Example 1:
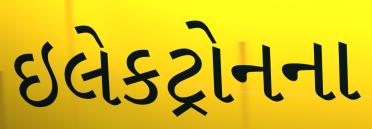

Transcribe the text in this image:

ઇલેકટ્રોનના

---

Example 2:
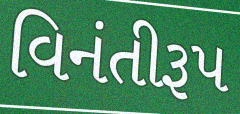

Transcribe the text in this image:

વિનંતીરૂપ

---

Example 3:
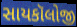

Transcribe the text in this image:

સાયકૉલોજી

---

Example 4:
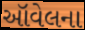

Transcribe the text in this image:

ઑવેલના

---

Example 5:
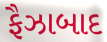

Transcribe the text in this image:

ફૈઝાબાદ